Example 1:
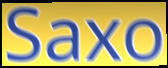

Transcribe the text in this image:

Saxo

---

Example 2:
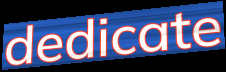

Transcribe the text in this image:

dedicate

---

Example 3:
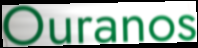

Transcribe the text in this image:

Ouranos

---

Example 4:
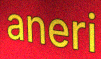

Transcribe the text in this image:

aneri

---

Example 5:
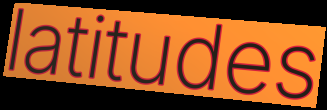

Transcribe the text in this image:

latitudes